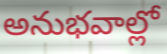
అనుభవాల్లో